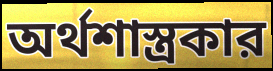
অর্থশাস্ত্রকার